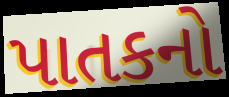
પાતકનો